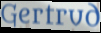
Gertrud